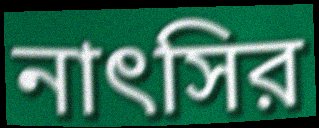
নাৎসির